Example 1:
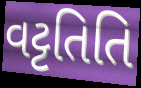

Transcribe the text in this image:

વટ્ટતિતિ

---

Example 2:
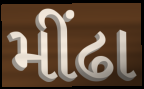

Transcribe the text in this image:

મીંઢા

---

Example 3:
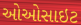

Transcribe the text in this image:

ઓઓસાઇટ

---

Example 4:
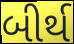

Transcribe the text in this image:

બીર્થ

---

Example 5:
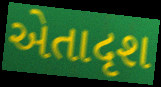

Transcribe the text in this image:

એતાદૃશ